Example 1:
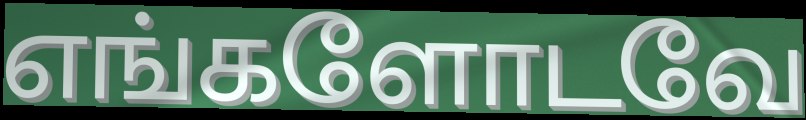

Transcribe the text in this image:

எங்களோடவே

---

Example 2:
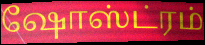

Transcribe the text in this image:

ஷோஸ்ட்ரம்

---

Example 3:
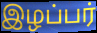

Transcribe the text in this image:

இழப்பர்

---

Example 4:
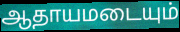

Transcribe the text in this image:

ஆதாயமடையும்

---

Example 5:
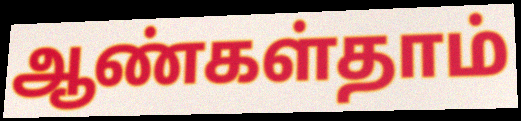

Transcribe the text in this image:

ஆண்கள்தாம்